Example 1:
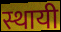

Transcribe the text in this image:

स्थायी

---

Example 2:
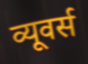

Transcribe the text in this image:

व्यूवर्स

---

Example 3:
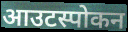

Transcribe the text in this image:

आउटस्पोकन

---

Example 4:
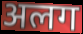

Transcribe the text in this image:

अलग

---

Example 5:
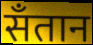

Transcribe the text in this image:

सँतान